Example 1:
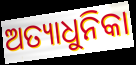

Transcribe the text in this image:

ଅତ୍ୟାଧୁନିକା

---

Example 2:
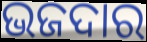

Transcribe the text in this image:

ଭଜଦାର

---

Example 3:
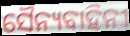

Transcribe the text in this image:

ସୈନ୍ଯବାହିନୀ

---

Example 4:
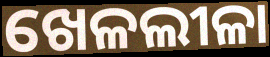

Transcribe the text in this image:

ଖେଳଲୀଳା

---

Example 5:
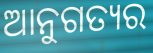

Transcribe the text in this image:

ଆନୁଗତ୍ୟର